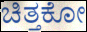
ಚಿತ್ತಕೋ